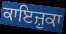
ਕਾਇਜ਼ੁਕਾ